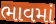
ભાવમાં